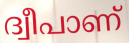
ദ്വീപാണ്